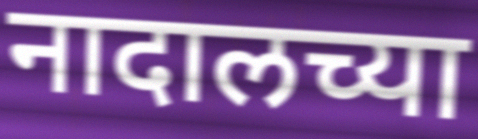
नादालच्या